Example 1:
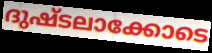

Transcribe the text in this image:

ദുഷ്ടലാക്കോടെ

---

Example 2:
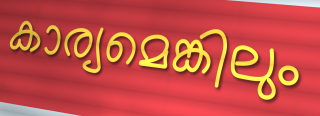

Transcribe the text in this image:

കാര്യമെങ്കിലും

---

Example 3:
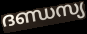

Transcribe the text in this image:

ദണ്ഡസ്യ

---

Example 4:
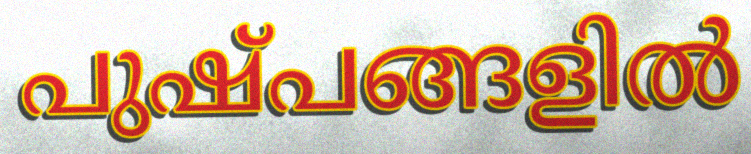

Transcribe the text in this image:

പുഷ്പങ്ങളിൽ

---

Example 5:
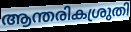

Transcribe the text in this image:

ആന്തരികശ്രുതി